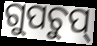
ଗୁପଚୁପ୍